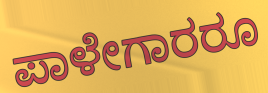
ಪಾಳೇಗಾರರೂ